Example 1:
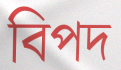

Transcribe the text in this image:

বিপদ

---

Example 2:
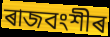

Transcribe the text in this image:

ৰাজবংশীৰ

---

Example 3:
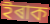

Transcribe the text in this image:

ইৰাক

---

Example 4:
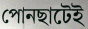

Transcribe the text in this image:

পোনছাটেই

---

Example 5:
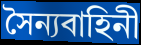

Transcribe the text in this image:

সৈন্যবাহিনী